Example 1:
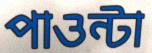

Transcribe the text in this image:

পাওন্টা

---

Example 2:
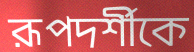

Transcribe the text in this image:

রূপদর্শীকে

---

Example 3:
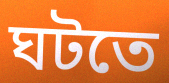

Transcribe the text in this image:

ঘটতে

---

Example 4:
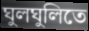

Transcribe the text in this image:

ঘুলঘুলিতে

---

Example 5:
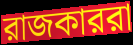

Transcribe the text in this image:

রাজকাররা